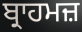
ਬ੍ਰਾਹਮਜ਼